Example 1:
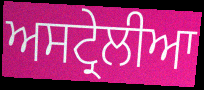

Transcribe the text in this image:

ਅਸਟ੍ਰੇਲੀਆ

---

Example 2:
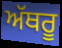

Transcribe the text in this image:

ਅੱਥਰੂ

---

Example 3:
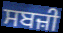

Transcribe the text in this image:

ਸਬਜ਼ੀ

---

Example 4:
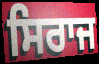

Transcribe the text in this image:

ਸਿਰਾਜ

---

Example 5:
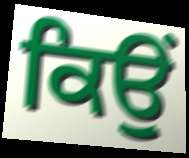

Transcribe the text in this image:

ਕਿਉਂ